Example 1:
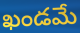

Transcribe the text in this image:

ఖండమే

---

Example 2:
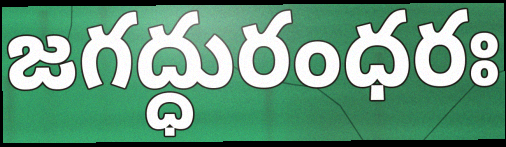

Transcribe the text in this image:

జగద్ధురంధరః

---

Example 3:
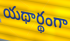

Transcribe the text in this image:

యథార్థంగా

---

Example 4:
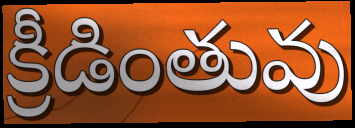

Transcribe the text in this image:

క్రీడింతువు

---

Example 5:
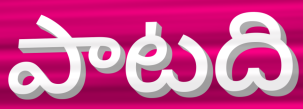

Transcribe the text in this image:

పాటది